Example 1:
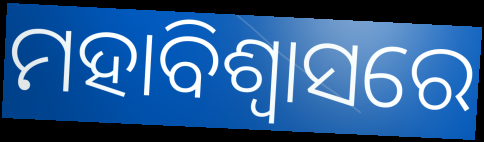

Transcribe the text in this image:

ମହାବିଶ୍ୱାସରେ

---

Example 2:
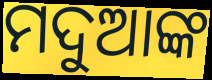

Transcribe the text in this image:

ମଦୁଆଙ୍କ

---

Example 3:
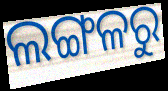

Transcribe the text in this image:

ଲଙ୍ଗଳରୁ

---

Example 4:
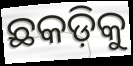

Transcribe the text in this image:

ଛକଡ଼ିକୁ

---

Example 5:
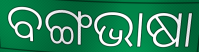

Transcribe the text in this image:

ବଙ୍ଗଭାଷା